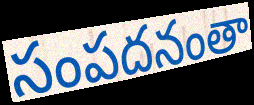
సంపదనంతా